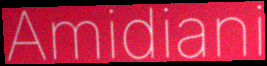
Amidiani